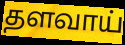
தளவாய்